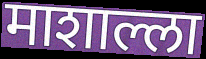
माशाल्ला